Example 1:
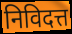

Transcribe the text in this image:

निविदत्त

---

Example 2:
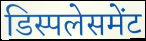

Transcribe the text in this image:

डिस्पलेसमेंट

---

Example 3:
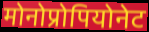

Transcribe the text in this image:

मोनोप्रोपियोनेट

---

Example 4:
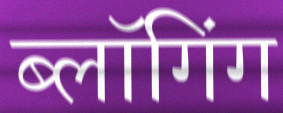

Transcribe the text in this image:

ब्लॉगिंग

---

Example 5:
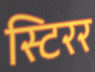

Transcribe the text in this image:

स्टिरर